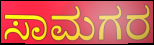
ಸಾಮಗರ